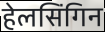
हेलसिंगिन